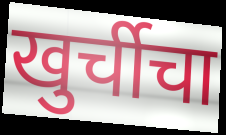
खुर्चीचा